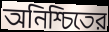
অনিশ্চিতের